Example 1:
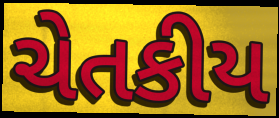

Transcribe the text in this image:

ચેતકીય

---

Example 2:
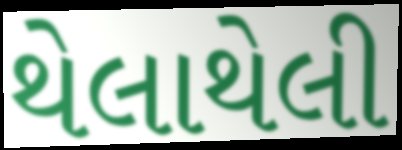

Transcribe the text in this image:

થેલાથેલી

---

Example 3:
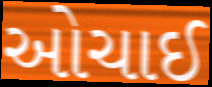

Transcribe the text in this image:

ઓચાઈ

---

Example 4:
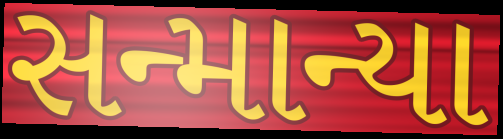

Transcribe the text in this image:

સન્માન્યા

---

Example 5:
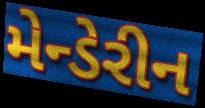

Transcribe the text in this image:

મેન્ડેરીન